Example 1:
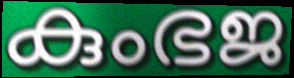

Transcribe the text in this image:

കുംഭജ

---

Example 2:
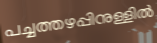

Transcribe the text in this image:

പച്ചത്തഴപ്പിനുള്ളിൽ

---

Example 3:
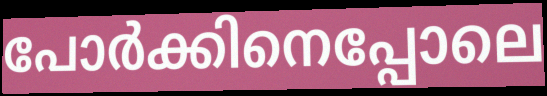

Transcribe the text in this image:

പോർക്കിനെപ്പോലെ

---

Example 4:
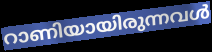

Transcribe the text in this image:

റാണിയായിരുന്നവൾ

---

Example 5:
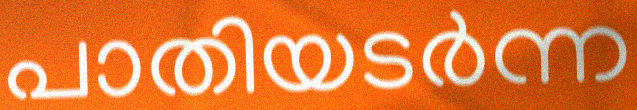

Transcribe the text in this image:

പാതിയടർന്ന